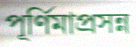
পূর্ণিমাপ্রসন্ন